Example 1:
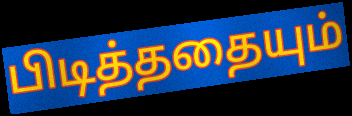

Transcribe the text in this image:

பிடித்ததையும்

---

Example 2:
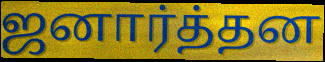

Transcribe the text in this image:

ஜனார்த்தன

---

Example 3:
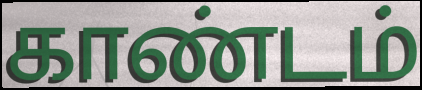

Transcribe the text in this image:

காண்டம்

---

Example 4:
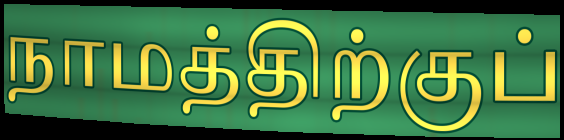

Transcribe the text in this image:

நாமத்திற்குப்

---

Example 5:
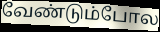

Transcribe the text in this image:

வேண்டும்போல